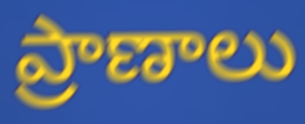
ప్రాణాలు